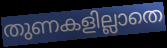
തുണകളില്ലാതെ